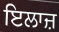
ਇਲਾਜ਼